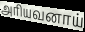
அரியவனாய்